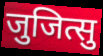
जुजित्सु